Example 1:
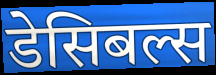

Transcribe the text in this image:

डेसिबल्स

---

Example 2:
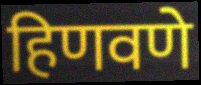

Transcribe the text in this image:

हिणवणे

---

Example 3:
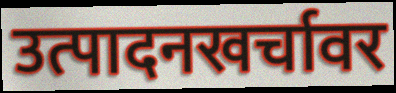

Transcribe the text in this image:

उत्पादनखर्चावर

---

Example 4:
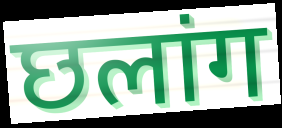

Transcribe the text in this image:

छलांग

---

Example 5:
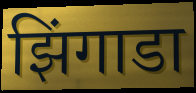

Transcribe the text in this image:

झिंगाडा